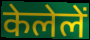
केलेलें